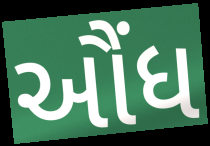
ઔંધ